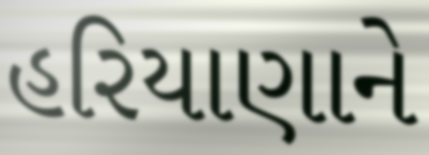
હરિયાણાને